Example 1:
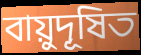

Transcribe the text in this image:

বায়ুদূষিত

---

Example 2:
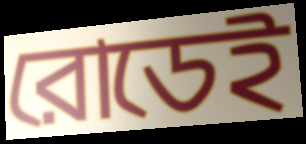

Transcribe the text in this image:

রোডেই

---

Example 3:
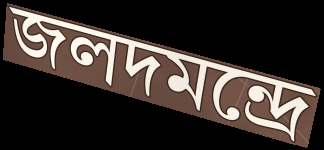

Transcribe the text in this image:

জলদমন্দ্রে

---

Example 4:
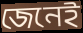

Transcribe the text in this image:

জেনেই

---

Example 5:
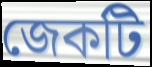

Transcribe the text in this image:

জেকটি